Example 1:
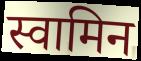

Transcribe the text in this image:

स्वामिन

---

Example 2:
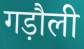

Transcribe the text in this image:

गड़ौली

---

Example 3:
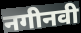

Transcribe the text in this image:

नगीनवी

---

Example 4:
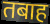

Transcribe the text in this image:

तबाह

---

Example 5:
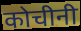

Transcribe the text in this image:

कोचीनी